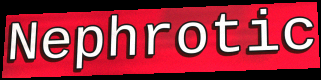
Nephrotic